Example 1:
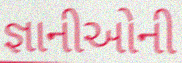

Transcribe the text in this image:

જ્ઞાનીઓની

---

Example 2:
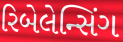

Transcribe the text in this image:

રિબેલેન્સિંગ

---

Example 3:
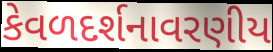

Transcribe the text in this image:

કેવળદર્શનાવરણીય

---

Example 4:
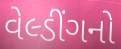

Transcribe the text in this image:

વેલ્ડીંગનો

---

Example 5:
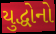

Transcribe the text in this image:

યુદ્ધોનો